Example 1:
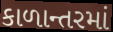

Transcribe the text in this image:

કાળાન્તરમાં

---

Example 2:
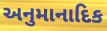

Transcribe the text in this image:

અનુમાનાદિક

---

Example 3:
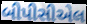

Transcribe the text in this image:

બીપીસીએલ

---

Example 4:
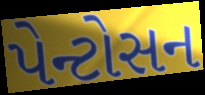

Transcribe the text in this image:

પેન્ટોસન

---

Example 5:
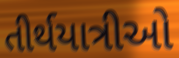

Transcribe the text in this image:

તીર્થયાત્રીઓ